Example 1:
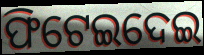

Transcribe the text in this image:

ଫିଟେଇଦେଇ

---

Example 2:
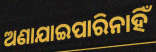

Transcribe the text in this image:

ଅଣାଯାଇପାରିନାହିଁ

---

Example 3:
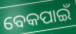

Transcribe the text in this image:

ବେକପାଇଁ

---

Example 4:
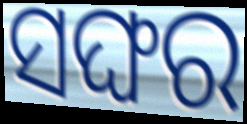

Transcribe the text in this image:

ସଙ୍ଘର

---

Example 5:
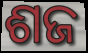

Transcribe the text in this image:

ଶଜ